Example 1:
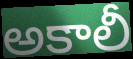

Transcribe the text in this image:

అకాలీ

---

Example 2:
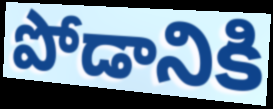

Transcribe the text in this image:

పోడానికి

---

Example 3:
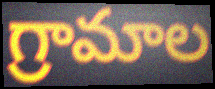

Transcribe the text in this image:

గ్రామాల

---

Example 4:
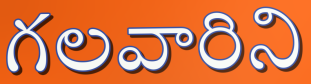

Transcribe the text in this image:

గలవారిని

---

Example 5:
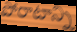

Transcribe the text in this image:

పోరాటాన్ని